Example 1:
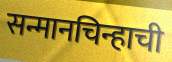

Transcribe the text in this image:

सन्मानचिन्हाची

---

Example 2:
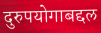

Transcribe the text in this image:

दुरुपयोगाबद्दल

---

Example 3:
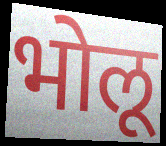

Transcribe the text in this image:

भोलू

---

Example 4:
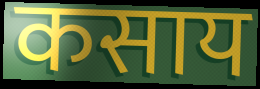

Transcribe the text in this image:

कसाय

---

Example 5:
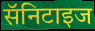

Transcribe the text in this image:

सॅनिटाइज